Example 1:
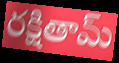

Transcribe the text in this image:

రక్షితామ్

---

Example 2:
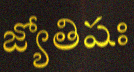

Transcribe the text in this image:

జ్యోతిషః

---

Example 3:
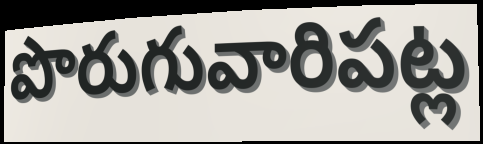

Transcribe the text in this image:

పొరుగువారిపట్ల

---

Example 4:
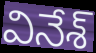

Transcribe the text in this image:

వినేశ్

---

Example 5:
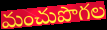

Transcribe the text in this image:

మంచుపొగల